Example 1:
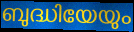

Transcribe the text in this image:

ബുദ്ധിയേയും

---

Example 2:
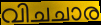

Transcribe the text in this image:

വിചചാര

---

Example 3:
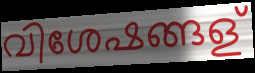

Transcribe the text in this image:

വിശേഷങ്ങള്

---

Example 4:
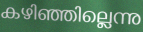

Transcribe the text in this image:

കഴിഞ്ഞില്ലെന്നു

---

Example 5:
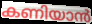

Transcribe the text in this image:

കണിയാൻ